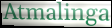
Atmalinga